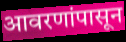
आवरणांपासून